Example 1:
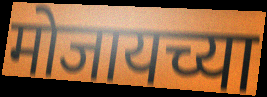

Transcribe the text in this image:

मोजायच्या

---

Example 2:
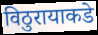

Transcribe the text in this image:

विठुरायाकडे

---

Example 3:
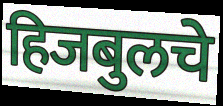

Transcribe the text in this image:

हिजबुलचे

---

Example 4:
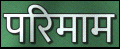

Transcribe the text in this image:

परिमाम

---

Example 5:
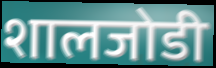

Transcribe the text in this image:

शालजोडी